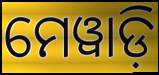
ମେୱାଡ଼ି